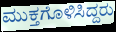
ಮುಕ್ತಗೊಳಿಸಿದ್ದರು